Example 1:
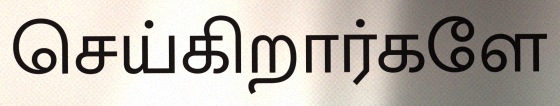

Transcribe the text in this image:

செய்கிறார்களே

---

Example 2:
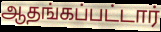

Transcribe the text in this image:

ஆதங்கப்பட்டார்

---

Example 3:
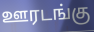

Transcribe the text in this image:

ஊரடங்கு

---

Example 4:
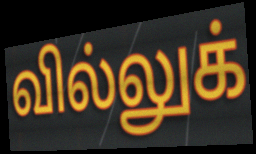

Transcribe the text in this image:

வில்லுக்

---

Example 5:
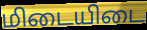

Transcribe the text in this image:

மிடையிடை